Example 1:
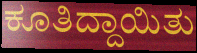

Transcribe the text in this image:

ಕೂತಿದ್ದಾಯಿತು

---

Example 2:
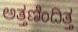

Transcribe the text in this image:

ಅತ್ತಣಿಂದಿತ್ತ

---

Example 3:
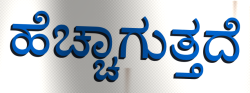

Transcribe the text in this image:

ಹೆಚ್ಚಾಗುತ್ತದೆ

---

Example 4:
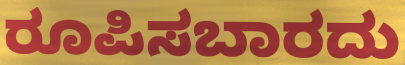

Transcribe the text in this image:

ರೂಪಿಸಬಾರದು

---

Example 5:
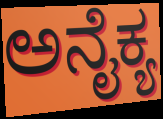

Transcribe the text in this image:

ಅನೈಕ್ಯ